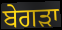
ਬੇਗੜਾ